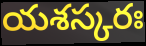
యశస్కరః